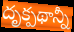
దృక్పథాన్నీ